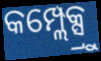
କମ୍ପ୍ଲେକ୍ସ୍ରୁ